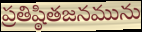
ప్రతిష్ఠితజనమును